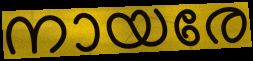
നായരേ